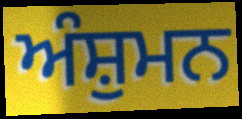
ਅੰਸ਼ੁਮਨ